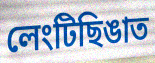
লেংটিছিঙাত